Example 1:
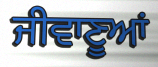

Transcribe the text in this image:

ਜੀਵਾਣੂਆਂ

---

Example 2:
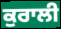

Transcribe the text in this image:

ਕੁਰਾਲੀ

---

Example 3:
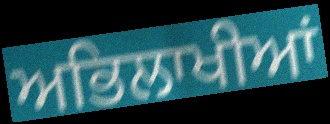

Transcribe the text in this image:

ਅਭਿਲਾਖੀਆਂ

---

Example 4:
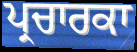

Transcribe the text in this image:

ਪ੍ਰਚਾਰਕਾ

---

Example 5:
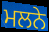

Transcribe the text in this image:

ਮਲਨੇ